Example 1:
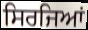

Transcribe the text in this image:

ਸਿਰਜਿਆਂ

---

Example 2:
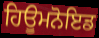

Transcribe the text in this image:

ਹਿਊਮਨੋਇਡ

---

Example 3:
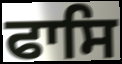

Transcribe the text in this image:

ਫਾਸਿ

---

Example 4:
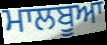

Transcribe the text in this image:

ਮਾਲਬੂਆ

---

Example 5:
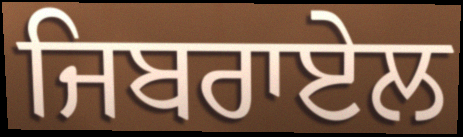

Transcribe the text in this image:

ਜਿਬਰਾਏਲ